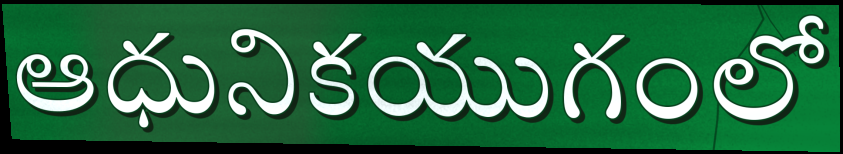
ఆధునికయుగంలో